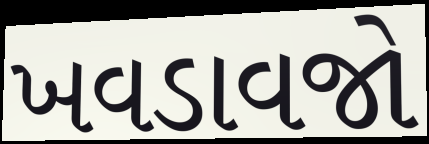
ખવડાવજો